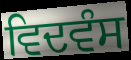
ਵਿਦਵੰਸ